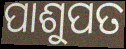
ପାଶୁପତ